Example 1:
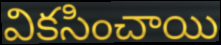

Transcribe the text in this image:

వికసించాయి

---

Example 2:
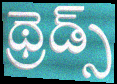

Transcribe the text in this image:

థ్రెడ్స్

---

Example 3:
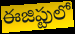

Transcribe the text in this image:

ఈజిప్టులో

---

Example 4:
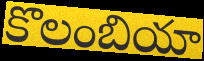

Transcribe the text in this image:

కొలంబియా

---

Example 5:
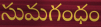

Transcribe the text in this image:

సుమగంధం